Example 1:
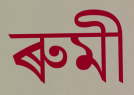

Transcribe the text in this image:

ৰুমী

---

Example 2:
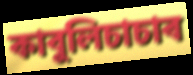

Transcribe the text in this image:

কাবুলিচাচাৰ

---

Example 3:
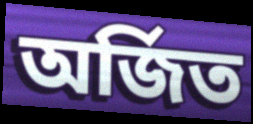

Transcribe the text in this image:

অৰ্জিত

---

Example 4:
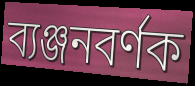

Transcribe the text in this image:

ব্যঞ্জনবৰ্ণক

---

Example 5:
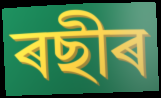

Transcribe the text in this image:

ৰছীৰ